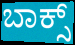
ಬಾಕ್ಸ್